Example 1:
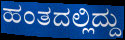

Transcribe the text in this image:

ಹಂತದಲ್ಲಿದ್ದು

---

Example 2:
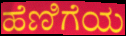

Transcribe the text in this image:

ಹೆಣಿಗೆಯ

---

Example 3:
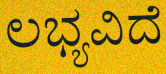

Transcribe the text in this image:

ಲಭ್ಯವಿದೆ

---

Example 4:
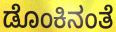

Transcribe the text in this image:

ಡೊಂಕಿನಂತೆ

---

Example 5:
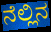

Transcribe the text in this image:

ನೆಲ್ಲಿನ